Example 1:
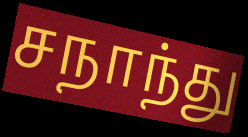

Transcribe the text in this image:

சநாந்து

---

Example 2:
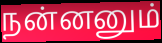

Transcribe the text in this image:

நன்னனும்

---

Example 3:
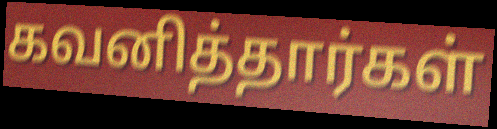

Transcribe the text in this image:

கவனித்தார்கள்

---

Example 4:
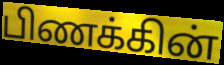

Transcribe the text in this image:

பிணக்கின்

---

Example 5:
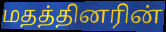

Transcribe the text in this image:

மதத்தினரின்